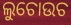
ଲୁଚୋଉଚ